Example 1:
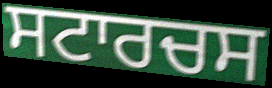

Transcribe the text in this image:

ਸਟਾਰਚਸ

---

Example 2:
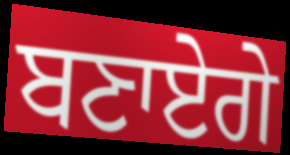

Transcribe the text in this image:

ਬਣਾਏਗੇ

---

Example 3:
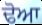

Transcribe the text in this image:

ਢੋਆ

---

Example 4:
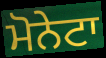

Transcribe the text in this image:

ਮੋਨੇਟਾ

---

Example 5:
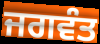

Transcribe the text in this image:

ਜਗਵੰਤ